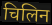
चिलिन